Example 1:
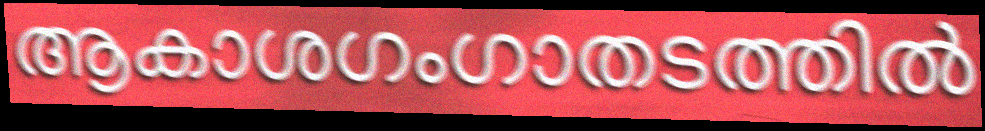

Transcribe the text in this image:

ആകാശഗംഗാതടത്തിൽ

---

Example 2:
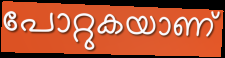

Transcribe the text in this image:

പോറ്റുകയാണ്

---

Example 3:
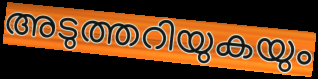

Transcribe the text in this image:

അടുത്തറിയുകയും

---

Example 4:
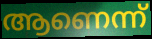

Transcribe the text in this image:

ആണെന്ന്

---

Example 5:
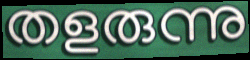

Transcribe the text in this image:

തളരുന്നു